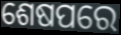
ଶେଷପରେ